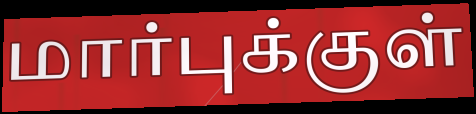
மார்புக்குள்